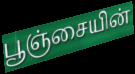
பூஞ்சையின்